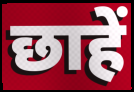
छाहें